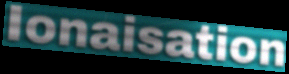
Ionaisation